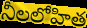
నీలలోహిత